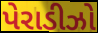
પેરાડીઝો